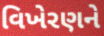
વિખેરણને